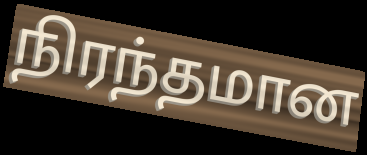
நிரந்தமான